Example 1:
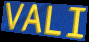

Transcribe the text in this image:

VALI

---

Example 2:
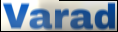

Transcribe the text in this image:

Varad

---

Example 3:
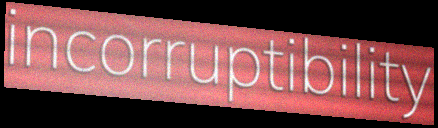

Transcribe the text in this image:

incorruptibility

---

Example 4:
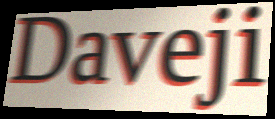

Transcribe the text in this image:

Daveji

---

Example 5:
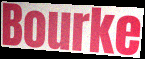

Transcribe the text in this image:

Bourke